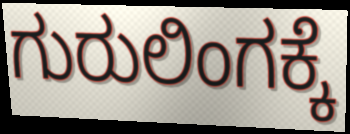
ಗುರುಲಿಂಗಕ್ಕೆ